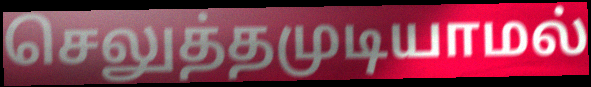
செலுத்தமுடியாமல்